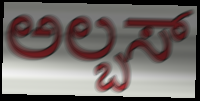
ಅಲ್ಬಸ್